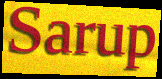
Sarup